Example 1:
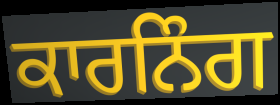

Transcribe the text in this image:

ਕਾਰਨਿੰਗ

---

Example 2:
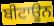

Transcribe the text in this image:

ਬੀਟਾਊਨ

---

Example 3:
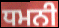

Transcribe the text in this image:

ਧਮਨੀ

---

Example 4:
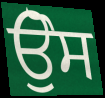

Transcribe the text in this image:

ਉੋਸ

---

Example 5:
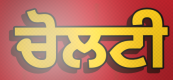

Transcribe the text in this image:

ਚੋਲਟੀ